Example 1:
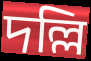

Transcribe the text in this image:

দল্লি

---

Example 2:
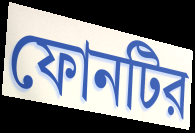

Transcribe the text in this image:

ফোনটির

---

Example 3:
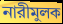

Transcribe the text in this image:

নারীমুলক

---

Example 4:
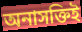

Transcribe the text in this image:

অনাসক্তিই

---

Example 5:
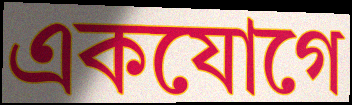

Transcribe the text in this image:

একযোগে